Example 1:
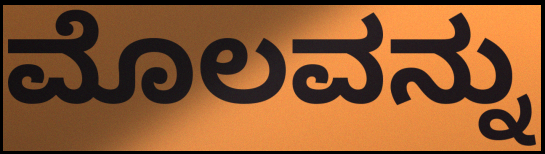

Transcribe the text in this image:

ಮೊಲವನ್ನು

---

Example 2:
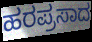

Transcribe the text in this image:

ಹರಪ್ರಸಾದ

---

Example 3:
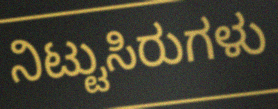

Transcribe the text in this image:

ನಿಟ್ಟುಸಿರುಗಳು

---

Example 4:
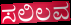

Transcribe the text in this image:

ಸಲಿಲವ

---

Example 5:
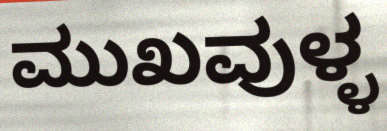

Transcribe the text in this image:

ಮುಖವುಳ್ಳ